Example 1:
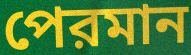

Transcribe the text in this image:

পেরমান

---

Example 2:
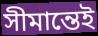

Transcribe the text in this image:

সীমান্তেই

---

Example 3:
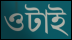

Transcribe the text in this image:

ওটাই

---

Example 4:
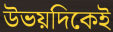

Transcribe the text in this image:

উভয়দিকেই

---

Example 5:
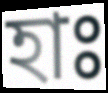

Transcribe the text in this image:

হাঃ